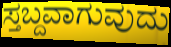
ಸ್ತಬ್ದವಾಗುವುದು